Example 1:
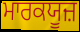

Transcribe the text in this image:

ਮਾਰਕਯੂਜ਼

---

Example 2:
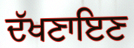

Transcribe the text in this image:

ਦੱਖਣਾਇਣ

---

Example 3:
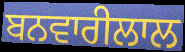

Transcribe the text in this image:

ਬਨਵਾਰੀਲਾਲ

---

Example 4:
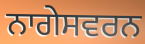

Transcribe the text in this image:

ਨਾਗੇਸਵਰਨ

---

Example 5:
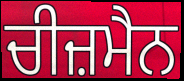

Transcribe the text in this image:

ਚੀਜ਼ਮੈਨ